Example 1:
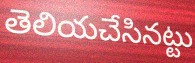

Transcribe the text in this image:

తెలియచేసినట్టు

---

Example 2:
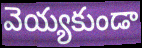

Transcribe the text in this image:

వెయ్యకుండా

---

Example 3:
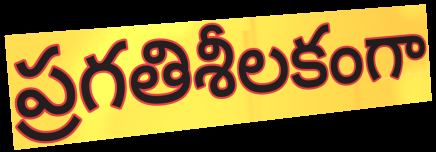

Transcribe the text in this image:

ప్రగతిశీలకంగా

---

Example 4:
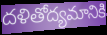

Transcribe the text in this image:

దళితోద్యమానికి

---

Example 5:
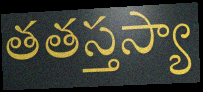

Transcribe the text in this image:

తతస్తస్యా